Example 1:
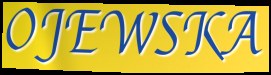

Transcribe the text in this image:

OJEWSKA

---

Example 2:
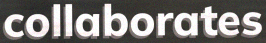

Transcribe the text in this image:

collaborates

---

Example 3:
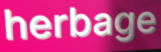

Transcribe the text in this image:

herbage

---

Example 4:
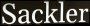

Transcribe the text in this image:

Sackler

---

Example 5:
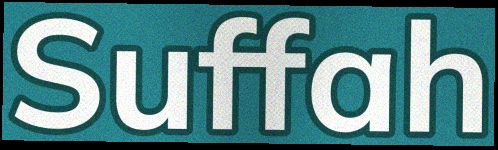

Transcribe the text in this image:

Suffah